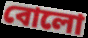
বোলো